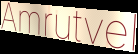
Amrutvel